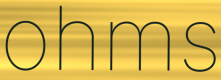
ohms